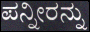
ಪನ್ನೀರನ್ನು